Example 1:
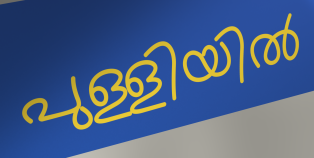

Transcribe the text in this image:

പുള്ളിയിൽ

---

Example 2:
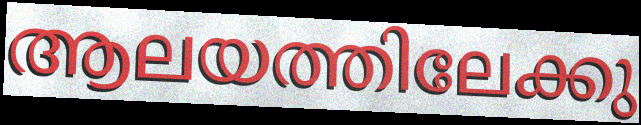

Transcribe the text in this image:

ആലയത്തിലേക്കു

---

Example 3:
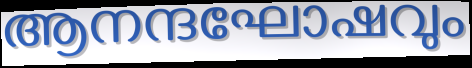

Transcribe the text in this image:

ആനന്ദഘോഷവും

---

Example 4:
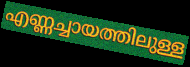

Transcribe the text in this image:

എണ്ണച്ചായത്തിലുള്ള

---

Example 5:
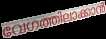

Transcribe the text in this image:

വേഗത്തിലാക്കാൻ